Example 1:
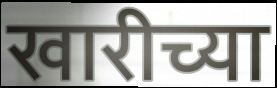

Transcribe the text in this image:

खारीच्या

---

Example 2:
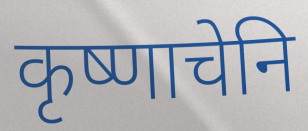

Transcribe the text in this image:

कृष्णाचेनि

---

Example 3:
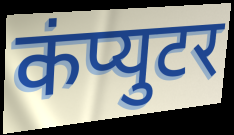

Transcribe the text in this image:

कंप्युटर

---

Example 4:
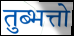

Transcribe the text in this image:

तुब्भत्तो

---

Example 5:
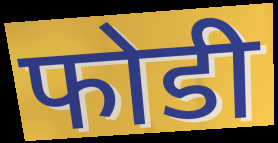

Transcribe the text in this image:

फोडी